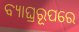
ବ୍ୟାଘ୍ରରୂପରେ